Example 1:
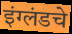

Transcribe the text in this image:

इंग्लंडचे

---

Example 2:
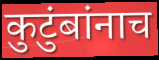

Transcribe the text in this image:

कुटुंबांनाच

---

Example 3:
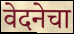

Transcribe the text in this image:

वेदनेचा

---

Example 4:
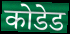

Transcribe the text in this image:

कोडेड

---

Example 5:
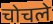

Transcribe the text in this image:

चोचले